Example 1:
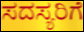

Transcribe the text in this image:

ಸದಸ್ಯರಿಗೆ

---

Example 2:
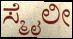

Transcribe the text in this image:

ಸ್ಮೈಲೀ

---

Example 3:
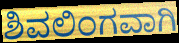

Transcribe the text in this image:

ಶಿವಲಿಂಗವಾಗಿ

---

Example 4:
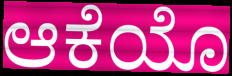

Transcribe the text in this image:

ಆಕೆಯೊ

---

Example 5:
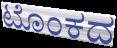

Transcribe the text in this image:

ಟೊಂಕದ